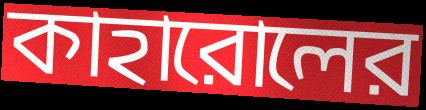
কাহারোলের